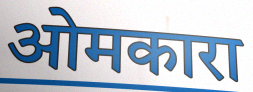
ओमकारा